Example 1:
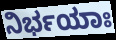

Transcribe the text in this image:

ನಿರ್ಭಯಾಃ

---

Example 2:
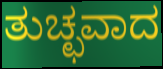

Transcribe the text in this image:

ತುಚ್ಛವಾದ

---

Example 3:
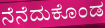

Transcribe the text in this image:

ನೆನೆದುಕೊಂಡ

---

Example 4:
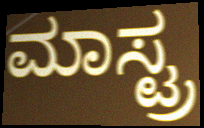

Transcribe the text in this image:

ಮಾಸ್ಟ್ರ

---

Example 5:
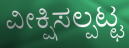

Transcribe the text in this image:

ವೀಕ್ಷಿಸಲ್ಪಟ್ಟ